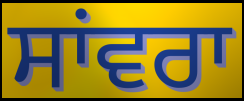
ਸਾਂਵਰਾ